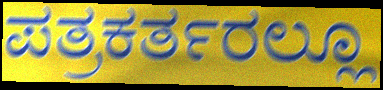
ಪತ್ರಕರ್ತರಲ್ಲೂ